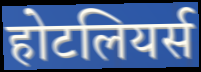
होटलियर्स